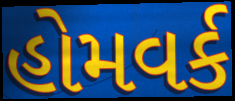
હોમવર્ક